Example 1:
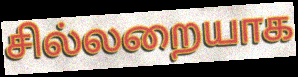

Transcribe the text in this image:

சில்லறையாக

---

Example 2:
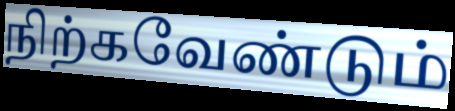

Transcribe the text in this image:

நிற்கவேண்டும்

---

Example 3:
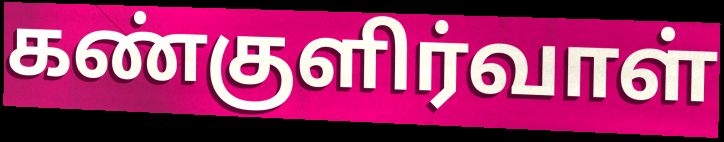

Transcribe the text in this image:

கண்குளிர்வாள்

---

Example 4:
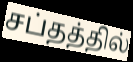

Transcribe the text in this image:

சப்தத்தில்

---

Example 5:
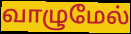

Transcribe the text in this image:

வாழுமேல்